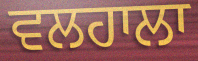
ਵਲਹਾਲਾ